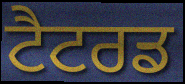
ਟੈਟਰਡ